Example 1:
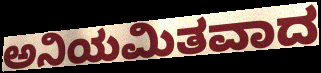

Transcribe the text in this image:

ಅನಿಯಮಿತವಾದ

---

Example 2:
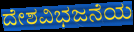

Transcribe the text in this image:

ದೇಶವಿಭಜನೆಯ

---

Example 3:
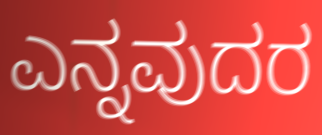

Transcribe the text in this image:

ಎನ್ನವುದರ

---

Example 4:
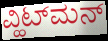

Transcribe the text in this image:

ವ್ಹಿಟ್‌ಮನ್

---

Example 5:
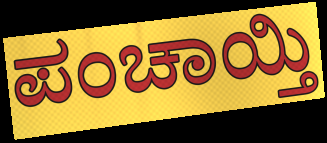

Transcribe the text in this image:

ಪಂಚಾಯ್ತಿ